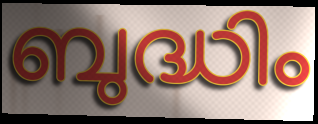
ബുദ്ധിം